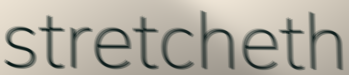
stretcheth